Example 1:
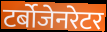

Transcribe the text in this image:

टर्बोजेनरेटर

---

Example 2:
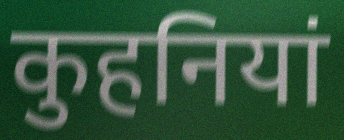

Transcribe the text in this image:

कुहनियां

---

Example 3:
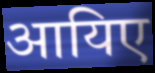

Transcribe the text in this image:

आयिए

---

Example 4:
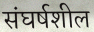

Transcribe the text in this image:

संघर्षशील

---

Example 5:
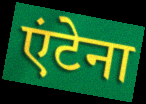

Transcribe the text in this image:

एंटेना